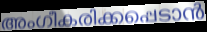
അംഗീകരിക്കപ്പെടാൻ